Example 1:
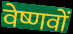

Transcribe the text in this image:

वेष्णवों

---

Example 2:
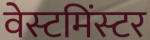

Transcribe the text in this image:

वेस्‍टमिंस्‍टर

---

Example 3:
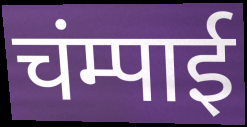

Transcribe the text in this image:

चंम्पाई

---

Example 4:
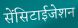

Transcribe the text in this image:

सेंसिटाईजेशन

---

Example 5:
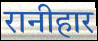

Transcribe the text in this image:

रानीहार